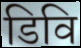
डिवि